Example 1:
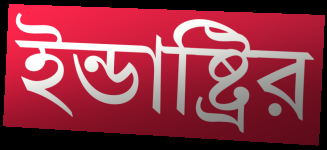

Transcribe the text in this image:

ইন্ডাষ্ট্রির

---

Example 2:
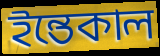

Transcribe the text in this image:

ইন্তেকাল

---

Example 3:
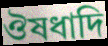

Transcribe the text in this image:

ঔষধাদি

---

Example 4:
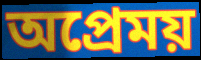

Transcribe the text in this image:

অপ্রেময়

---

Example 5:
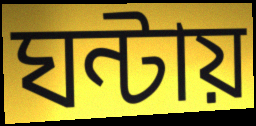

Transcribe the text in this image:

ঘন্টায়